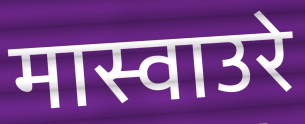
मास्वाउरे